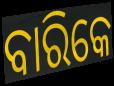
ବାରିକେ